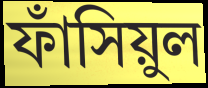
ফাঁসিয়ুল